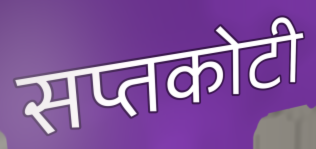
सप्तकोटी